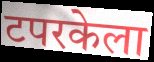
टपरकेला